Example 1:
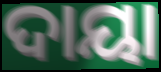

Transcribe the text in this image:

ଦାୟା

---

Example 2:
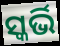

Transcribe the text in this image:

ସ୍କର୍ଭି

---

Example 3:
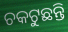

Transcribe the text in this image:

ଚକଟୁଛନ୍ତି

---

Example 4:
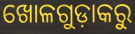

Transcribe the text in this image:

ଖୋଳଗୁଡ଼ାକରୁ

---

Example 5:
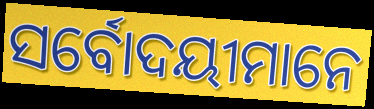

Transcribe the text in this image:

ସର୍ବୋଦୟୀମାନେ